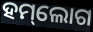
ହମ୍‌ଲୋଗ